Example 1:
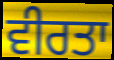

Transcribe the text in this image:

ਵੀਰਤਾ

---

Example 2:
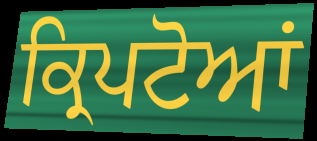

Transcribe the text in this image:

ਕ੍ਰਿਪਟੋਆਂ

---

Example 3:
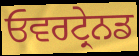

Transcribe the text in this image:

ਓਵਰਟ੍ਰੇਨਡ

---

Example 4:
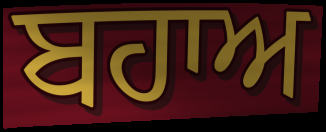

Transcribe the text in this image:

ਬਹਾਅ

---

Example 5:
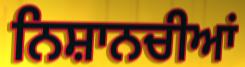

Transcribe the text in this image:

ਨਿਸ਼ਾਨਚੀਆਂ